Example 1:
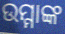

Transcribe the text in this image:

ଉମ୍ମାଙ୍କ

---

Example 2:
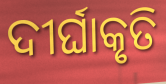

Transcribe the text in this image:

ଦୀର୍ଘାକୃତି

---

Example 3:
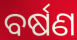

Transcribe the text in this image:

ବର୍ଷଣ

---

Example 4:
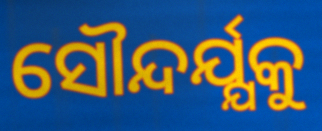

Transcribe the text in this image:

ସୌନ୍ଦର୍ଯ୍ଯକୁ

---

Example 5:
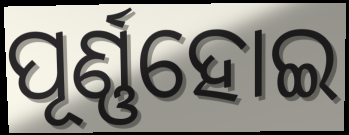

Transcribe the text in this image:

ପୂର୍ଣ୍ଣହୋଇ